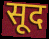
सूद